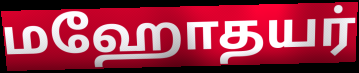
மஹோதயர்